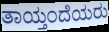
ತಾಯ್ತಂದೆಯರು